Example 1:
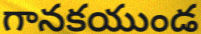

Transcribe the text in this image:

గానకయుండ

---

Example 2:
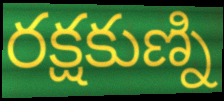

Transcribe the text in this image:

రక్షకుణ్ని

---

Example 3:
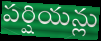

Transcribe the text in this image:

పర్షియన్లు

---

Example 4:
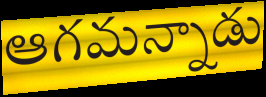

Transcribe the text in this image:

ఆగమన్నాడు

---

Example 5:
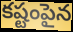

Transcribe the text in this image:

కష్టంపైన